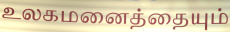
உலகமனைத்தையும்